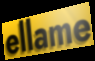
ellame